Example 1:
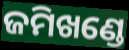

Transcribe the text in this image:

ଜମିଖଣ୍ଡେ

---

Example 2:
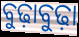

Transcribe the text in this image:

ବୁଢ଼ାବୁଢ଼ା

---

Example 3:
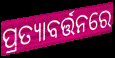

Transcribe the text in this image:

ପ୍ରତ୍ୟାବର୍ତ୍ତନରେ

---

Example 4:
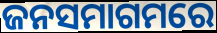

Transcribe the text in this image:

ଜନସମାଗମରେ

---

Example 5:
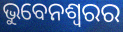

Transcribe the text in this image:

ଭୁବେନଶ୍ବରର